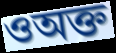
ওঅক্ত